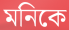
মনিকে